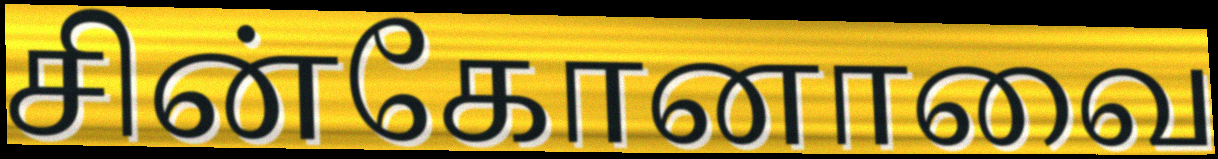
சின்கோனாவை